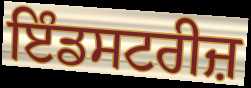
ਇੰਡਸਟਰੀਜ਼